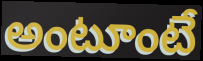
అంటూంటే